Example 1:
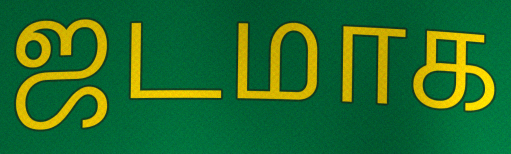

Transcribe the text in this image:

ஜடமாக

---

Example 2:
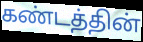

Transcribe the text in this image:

கண்டத்தின்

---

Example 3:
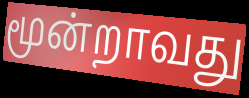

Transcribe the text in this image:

மூன்றாவது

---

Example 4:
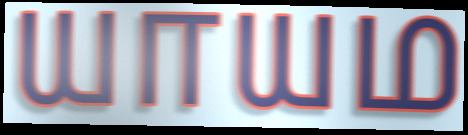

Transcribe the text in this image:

யாயம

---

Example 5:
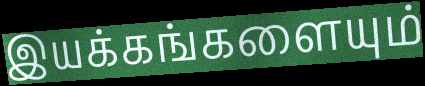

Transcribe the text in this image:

இயக்கங்களையும்